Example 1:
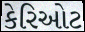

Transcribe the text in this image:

કેરિઓટ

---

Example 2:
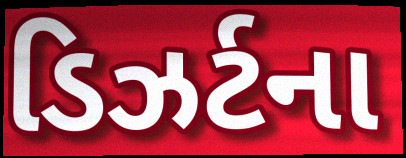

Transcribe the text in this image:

ડિઝર્ટના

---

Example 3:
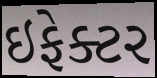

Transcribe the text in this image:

ઇફેક્ટર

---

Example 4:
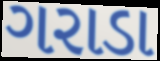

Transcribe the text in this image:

ગરાડા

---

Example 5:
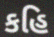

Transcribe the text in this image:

કહિ